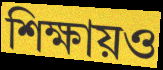
শিক্ষায়ও